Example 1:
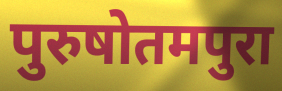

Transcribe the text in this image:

पुरुषोतमपुरा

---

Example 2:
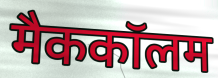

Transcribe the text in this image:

मैककॉलम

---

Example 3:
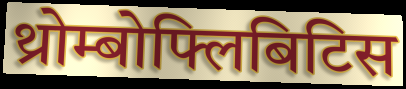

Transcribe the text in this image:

थ्रोम्बोफ्लिबिटिस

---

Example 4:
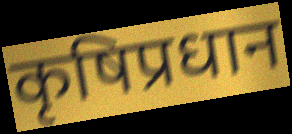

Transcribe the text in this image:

कृषिप्रधान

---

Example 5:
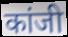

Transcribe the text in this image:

कांजी